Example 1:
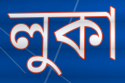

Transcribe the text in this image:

লুকা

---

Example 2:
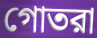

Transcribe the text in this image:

গোতরা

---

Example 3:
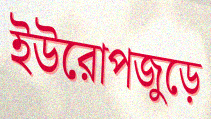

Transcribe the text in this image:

ইউরোপজুড়ে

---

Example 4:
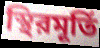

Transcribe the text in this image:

স্থিরমূর্তি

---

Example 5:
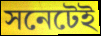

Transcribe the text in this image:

সনেটেই